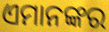
ଏମାନଙ୍କର